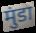
मुंडा